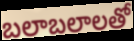
బలాబలాలతో